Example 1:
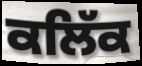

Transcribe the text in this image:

ਕਲਿੱਕ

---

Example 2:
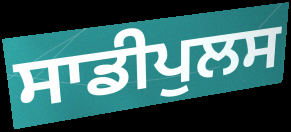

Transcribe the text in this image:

ਸਾਡੀਪੁਲਸ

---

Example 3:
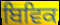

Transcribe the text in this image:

ਬਿਵਿਕ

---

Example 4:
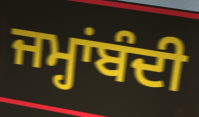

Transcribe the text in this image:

ਜਮ੍ਹਾਂਬੰਦੀ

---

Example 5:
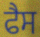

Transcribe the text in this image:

ਫੈਸ